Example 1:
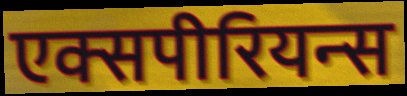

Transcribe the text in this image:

एक्सपीरियन्स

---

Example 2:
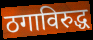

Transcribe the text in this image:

ठगाविरुद्ध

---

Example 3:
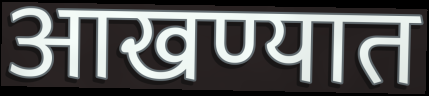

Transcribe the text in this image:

आखण्यात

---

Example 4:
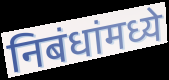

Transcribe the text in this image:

निबंधांमध्ये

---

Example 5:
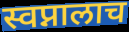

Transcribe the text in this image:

स्वप्नालाच